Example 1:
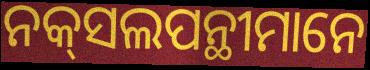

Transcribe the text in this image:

ନକ୍‌ସଲପନ୍ଥୀମାନେ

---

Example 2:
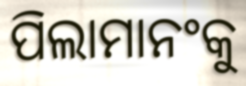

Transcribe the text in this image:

ପିଲାମାନଂକୁ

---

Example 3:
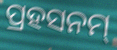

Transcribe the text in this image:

ପ୍ରହସନମ୍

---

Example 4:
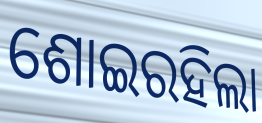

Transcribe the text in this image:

ଶୋଇରହିଲା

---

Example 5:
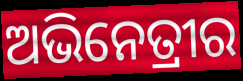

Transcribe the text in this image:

ଅଭିନେତ୍ରୀର